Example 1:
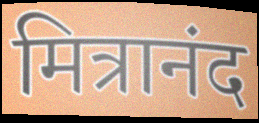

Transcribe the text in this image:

मित्रानंद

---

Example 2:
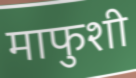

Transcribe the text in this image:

माफुशी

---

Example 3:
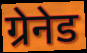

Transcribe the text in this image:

ग्रेनेड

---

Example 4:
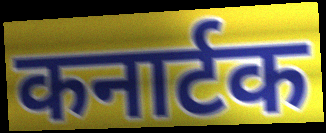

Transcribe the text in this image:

कनार्टक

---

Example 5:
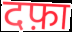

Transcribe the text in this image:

दफ़ा